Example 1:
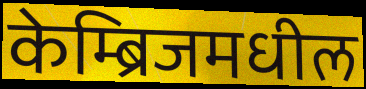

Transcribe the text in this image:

केम्ब्रिजमधील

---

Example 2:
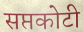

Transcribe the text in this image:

सप्तकोटी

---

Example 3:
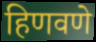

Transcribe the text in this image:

हिणवणे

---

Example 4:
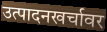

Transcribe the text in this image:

उत्पादनखर्चावर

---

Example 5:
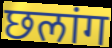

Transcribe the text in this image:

छलांग